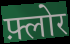
फ़्लोर